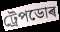
ট্ৰেপডোৰ